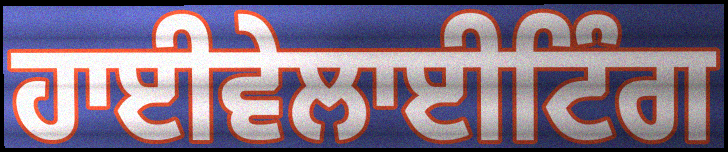
ਹਾਈਵੇਲਾਈਟਿੰਗ